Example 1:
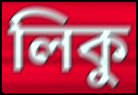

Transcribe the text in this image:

লিকু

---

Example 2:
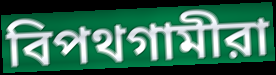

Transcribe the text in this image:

বিপথগামীরা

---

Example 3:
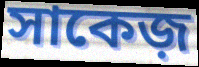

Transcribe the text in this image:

সাকেজ়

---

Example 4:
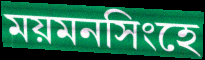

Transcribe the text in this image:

ময়মনসিংহে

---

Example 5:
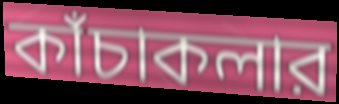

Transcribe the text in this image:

কাঁচাকলার